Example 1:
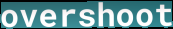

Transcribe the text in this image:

overshoot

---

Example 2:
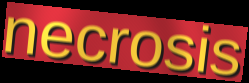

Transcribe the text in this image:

necrosis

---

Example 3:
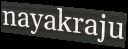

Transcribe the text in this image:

nayakraju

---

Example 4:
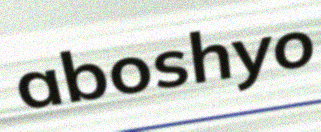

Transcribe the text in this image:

aboshyo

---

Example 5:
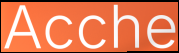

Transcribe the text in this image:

Acche